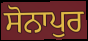
ਸੋਨਾਪੁਰ